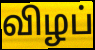
விழப்